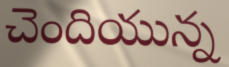
చెందియున్న